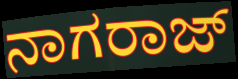
ನಾಗರಾಜ್